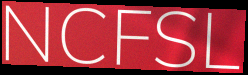
NCFSL